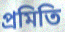
প্রমিতি